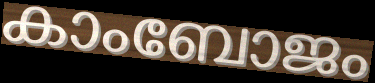
കാംബോജം